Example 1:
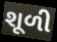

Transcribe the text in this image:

શૂળી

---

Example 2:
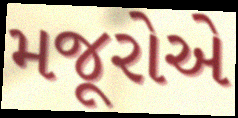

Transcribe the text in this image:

મજૂરોએ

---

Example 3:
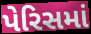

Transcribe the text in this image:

પેરિસમાં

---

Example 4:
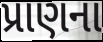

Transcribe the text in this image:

પ્રાણના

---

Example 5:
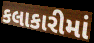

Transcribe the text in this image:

કલાકારીમાં